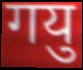
गयु